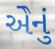
એેનું